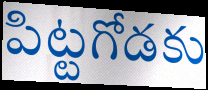
పిట్టగోడకు